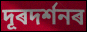
দূৰদৰ্শনৰ